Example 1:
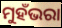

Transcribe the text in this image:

ମୁହଁଭରା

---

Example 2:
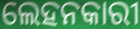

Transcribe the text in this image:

ଲେହନକାରୀ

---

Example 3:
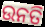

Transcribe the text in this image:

ଉନତି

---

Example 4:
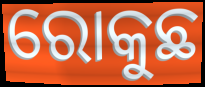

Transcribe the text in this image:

ରୋକୁଛ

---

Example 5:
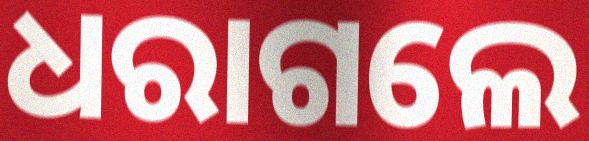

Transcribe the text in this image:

ଧରାଗଲେ